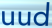
uud